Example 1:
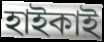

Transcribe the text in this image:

হাইকাই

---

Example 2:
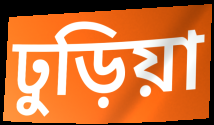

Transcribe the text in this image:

ঢুড়িয়া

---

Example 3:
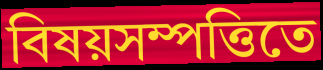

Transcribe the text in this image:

বিষয়সম্পত্তিতে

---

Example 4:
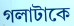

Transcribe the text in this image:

গলাটাকে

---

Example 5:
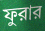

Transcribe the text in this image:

ফুরার